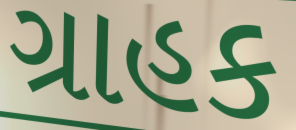
ગ્રાહક